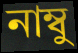
নাম্বু